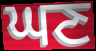
ਘਣ